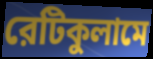
রেটিকুলামে